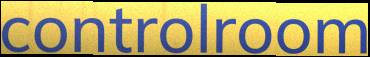
controlroom